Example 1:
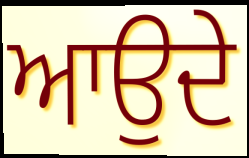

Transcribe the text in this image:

ਆਉਦੇ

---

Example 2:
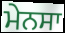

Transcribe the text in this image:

ਮੇਨਸਾ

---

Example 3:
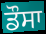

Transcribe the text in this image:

ਡੌਸਾ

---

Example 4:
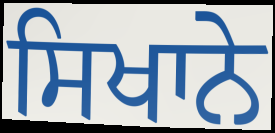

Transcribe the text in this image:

ਸਿਖਾਨੇ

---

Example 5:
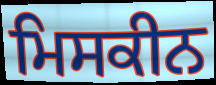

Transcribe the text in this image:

ਮਿਸਕੀਨ